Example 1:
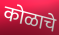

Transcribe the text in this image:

कोळाचे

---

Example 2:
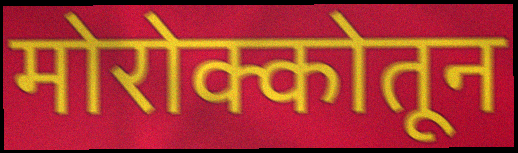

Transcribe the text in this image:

मोरोक्कोतून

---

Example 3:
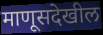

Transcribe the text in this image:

माणूसदेखील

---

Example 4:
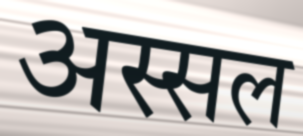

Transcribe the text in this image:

अस्सल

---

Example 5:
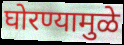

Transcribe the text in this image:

घोरण्यामुळे